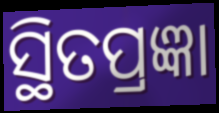
ସ୍ଥିତପ୍ରଜ୍ଞା